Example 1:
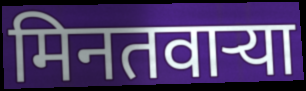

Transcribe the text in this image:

मिनतवार्‍या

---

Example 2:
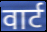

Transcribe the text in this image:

वार्ट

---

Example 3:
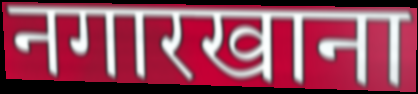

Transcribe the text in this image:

नगारखाना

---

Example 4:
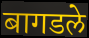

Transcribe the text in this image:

बागडले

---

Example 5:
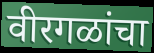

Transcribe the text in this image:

वीरगळांचा